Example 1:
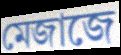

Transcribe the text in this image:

মেজাজে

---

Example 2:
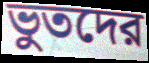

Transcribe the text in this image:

ভুতদের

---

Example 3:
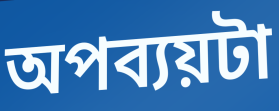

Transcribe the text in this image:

অপব্যয়টা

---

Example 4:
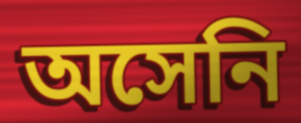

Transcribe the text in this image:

অসেনি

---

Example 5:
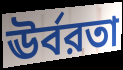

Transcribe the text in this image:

ঊর্বরতা